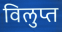
विलुप्त